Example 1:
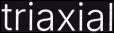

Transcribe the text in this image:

triaxial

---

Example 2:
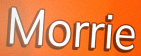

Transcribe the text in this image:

Morrie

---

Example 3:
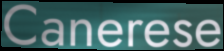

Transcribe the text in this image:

Canerese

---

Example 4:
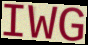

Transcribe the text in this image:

IWG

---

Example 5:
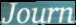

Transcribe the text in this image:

Journ